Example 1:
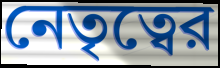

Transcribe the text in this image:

নেতৃত্বের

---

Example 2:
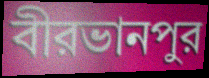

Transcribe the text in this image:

বীরভানপুর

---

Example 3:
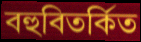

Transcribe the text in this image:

বহুবিতর্কিত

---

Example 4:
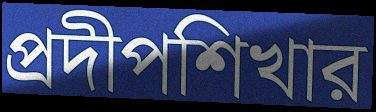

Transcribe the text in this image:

প্রদীপশিখার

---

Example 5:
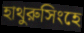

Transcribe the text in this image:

হাথুরুসিংহে